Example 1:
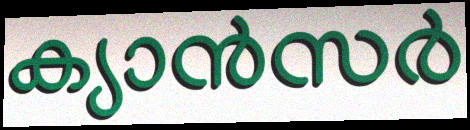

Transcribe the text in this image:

ക്യാൻസർ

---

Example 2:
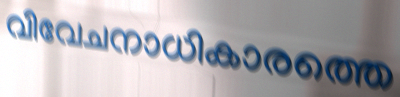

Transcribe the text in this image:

വിവേചനാധികാരത്തെ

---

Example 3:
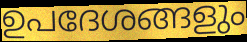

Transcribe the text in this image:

ഉപദേശങ്ങളും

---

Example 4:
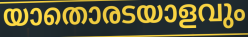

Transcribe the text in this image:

യാതൊരടയാളവും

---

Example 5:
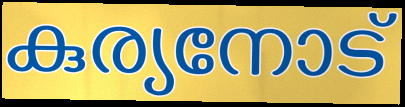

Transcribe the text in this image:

കുര്യനോട്